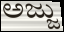
ಅಜ್ಜು